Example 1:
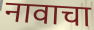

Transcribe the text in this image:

नावाचा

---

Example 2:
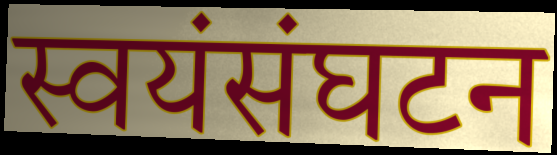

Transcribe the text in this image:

स्वयंसंघटन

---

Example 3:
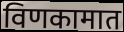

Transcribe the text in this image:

विणकामात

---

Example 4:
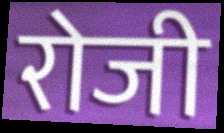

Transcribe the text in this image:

रोजी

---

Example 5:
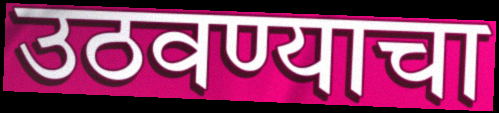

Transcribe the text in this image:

उठवण्याचा